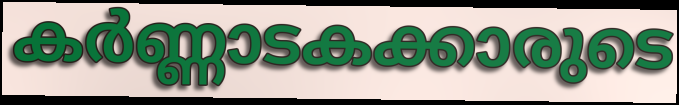
കർണ്ണാടകക്കാരുടെ